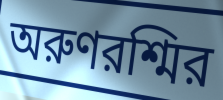
অরুণরশ্মির